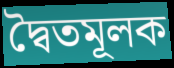
দ্বৈতমূলক